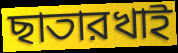
ছাতারখাই